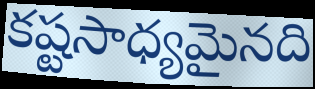
కష్టసాధ్యమైనది